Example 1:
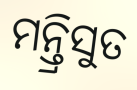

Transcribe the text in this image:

ମନ୍ତ୍ରିସୁତ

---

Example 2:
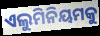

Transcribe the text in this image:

ଏଲୁମିନିୟମକୁ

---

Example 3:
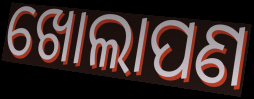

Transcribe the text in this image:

ଖୋଲାପଣ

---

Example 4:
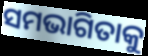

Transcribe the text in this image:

ସମଭାଗିତାକୁ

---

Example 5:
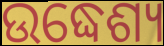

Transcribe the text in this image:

ଉଦ୍ଧେଶ୍ୟ